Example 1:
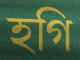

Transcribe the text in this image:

হগি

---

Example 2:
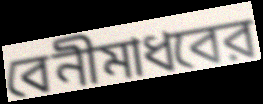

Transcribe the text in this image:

বেনীমাধবের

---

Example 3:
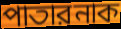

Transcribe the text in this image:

পাতারনাক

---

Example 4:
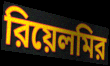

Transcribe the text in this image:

রিয়েলমির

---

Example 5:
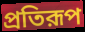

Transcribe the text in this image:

প্রতিরূপ